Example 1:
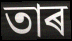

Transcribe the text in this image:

তাৰ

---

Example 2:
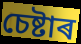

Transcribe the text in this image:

চেষ্টাৰ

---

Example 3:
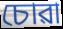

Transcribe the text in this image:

চোৱা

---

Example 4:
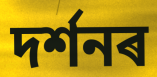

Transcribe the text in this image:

দৰ্শনৰ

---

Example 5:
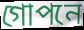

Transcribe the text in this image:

গোপনে